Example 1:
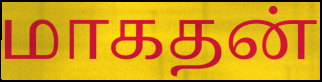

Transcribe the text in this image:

மாகதன்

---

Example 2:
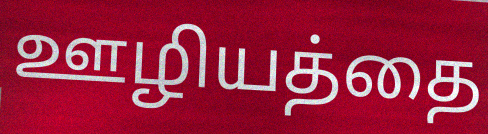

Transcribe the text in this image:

ஊழியத்தை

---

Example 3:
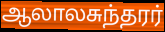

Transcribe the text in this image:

ஆலாலசுந்தரர்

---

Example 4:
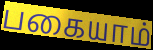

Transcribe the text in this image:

பகையாம்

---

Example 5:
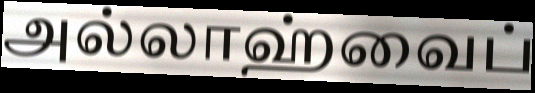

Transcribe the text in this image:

அல்லாஹ்வைப்